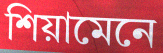
শিয়ামেনে